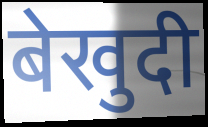
बेखुदी